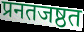
प्रनतजष्ठत